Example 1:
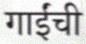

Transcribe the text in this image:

गाईंची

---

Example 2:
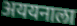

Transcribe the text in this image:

अययनाला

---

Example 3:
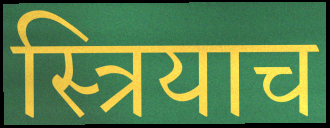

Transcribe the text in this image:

स्त्रियाच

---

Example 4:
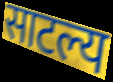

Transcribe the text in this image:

साटल्य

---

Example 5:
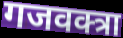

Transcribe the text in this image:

गजवक्त्रा